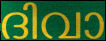
ദിവാ